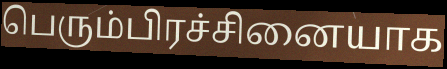
பெரும்பிரச்சினையாக